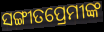
ସଙ୍ଗୀତପ୍ରେମୀଙ୍କ